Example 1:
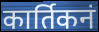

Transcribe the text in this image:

कार्तिकनं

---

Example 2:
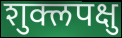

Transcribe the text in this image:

शुक्लपक्षु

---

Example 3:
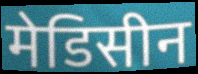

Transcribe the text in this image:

मेडिसीन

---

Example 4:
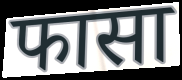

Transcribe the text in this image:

फासा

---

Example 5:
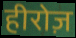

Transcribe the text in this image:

हीरोज़